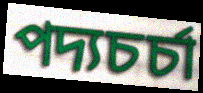
পদ্যচর্চা